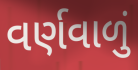
વર્ણવાળું